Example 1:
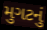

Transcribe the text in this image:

મુગટનું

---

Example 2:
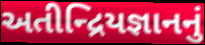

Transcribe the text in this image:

અતીન્દ્રિયજ્ઞાનનું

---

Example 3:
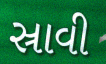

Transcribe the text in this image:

સ્રાવી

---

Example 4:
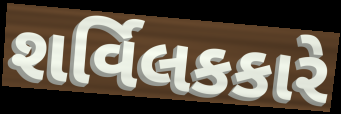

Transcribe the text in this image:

શર્વિલકકારે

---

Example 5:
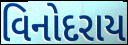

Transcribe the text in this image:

વિનોદરાય